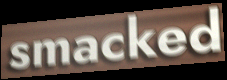
smacked